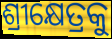
ଶ୍ରୀକ୍ଷେତ୍ରକୁ